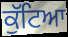
ਕੁੱਟਿਆ